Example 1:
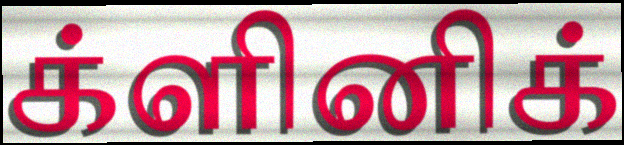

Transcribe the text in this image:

க்ளினிக்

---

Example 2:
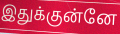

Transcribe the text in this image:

இதுக்குன்னே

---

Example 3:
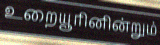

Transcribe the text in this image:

உறையூரினின்றும்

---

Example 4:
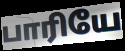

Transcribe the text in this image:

பாரியே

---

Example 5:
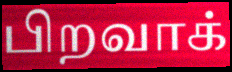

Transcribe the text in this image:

பிறவாக்